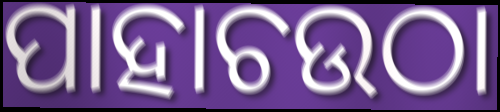
ପାହାଚଉଠା